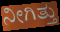
ನೀಗಿತ್ತು